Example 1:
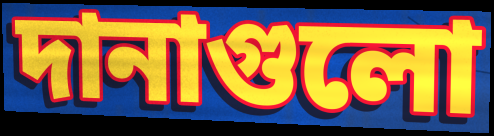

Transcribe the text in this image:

দানাগুলো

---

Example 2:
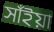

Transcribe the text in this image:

সাঁইয়া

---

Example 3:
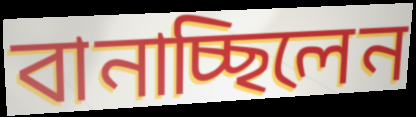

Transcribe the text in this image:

বানাচ্ছিলেন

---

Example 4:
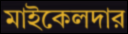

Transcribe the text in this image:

মাইকেলদার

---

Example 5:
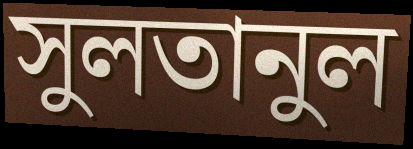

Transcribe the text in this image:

সুলতানুল